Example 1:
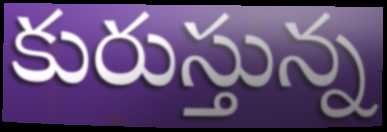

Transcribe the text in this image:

కురుస్తున్న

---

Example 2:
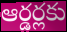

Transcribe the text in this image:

ఆర్డర్లకు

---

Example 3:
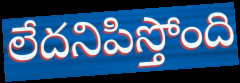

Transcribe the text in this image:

లేదనిపిస్తోంది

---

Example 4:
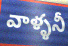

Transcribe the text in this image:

వాళ్ళనీ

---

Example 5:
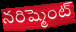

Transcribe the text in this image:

నరిష్మెంట్